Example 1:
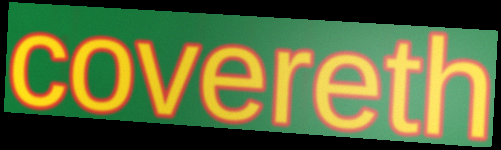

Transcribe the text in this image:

covereth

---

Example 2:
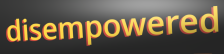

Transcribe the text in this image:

disempowered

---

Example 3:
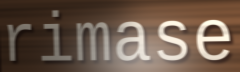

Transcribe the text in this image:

rimase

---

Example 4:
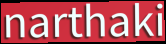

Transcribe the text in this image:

narthaki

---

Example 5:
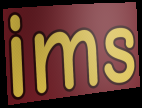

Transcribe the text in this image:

ims